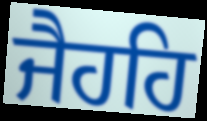
ਜੈਹਹਿ